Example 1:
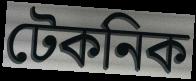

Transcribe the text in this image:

টেকনিক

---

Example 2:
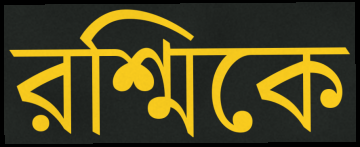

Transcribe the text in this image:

রশ্মিকে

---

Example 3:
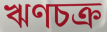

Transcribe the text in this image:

ঋণচক্র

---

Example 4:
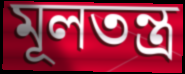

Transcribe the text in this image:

মূলতন্ত্র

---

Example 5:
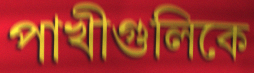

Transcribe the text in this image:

পাখীগুলিকে